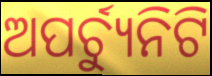
ଅପର୍ଚ୍ୟୁନିଟି